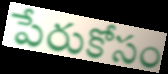
పేరుకోసం